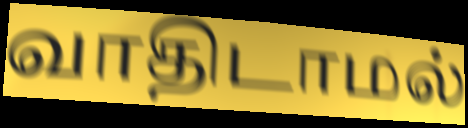
வாதிடாமல்